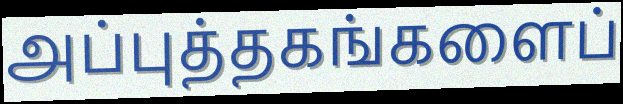
அப்புத்தகங்களைப்